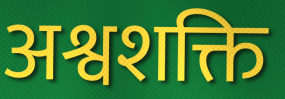
अश्वशक्ति